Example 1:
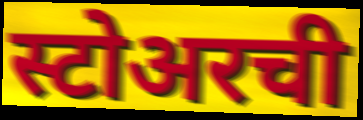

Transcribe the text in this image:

स्टोअरची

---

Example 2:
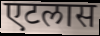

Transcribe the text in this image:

एटलास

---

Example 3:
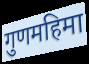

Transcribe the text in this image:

गुणमहिमा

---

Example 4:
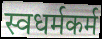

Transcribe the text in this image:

स्वधर्मकर्म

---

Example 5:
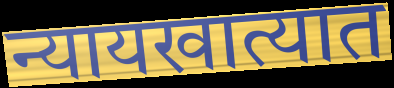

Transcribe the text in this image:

न्यायखात्यात